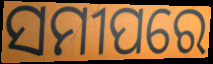
ସମୀପରେ